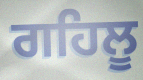
ਗਹਿਲੂ